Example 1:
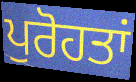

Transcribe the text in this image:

ਪੁਰੋਹਤਾਂ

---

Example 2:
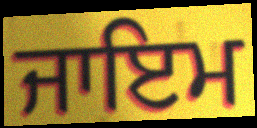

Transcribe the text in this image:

ਜਾਇਮ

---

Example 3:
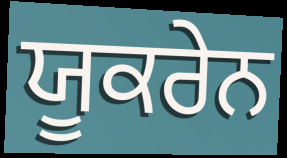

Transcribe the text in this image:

ਯੂਕਰੇਨ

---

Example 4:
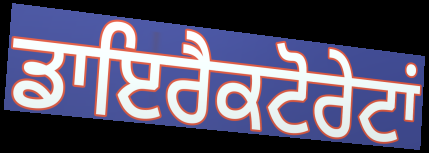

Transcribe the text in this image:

ਡਾਇਰੈਕਟੋਰੇਟਾਂ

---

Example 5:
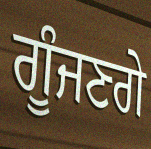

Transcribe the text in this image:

ਗੂੰਜਣਗੇ